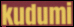
kudumi